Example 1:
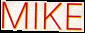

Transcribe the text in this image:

MIKE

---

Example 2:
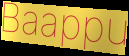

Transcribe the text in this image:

Baappu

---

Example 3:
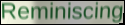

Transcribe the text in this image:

Reminiscing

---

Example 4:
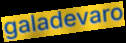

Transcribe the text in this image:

galadevaro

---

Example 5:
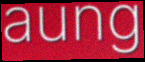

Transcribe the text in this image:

aung